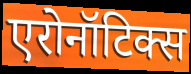
एरोनॉटिक्स